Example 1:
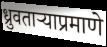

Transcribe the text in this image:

ध्रुवताऱ्याप्रमाणे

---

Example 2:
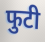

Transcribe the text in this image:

फुटी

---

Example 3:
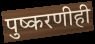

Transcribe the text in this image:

पुष्करणीही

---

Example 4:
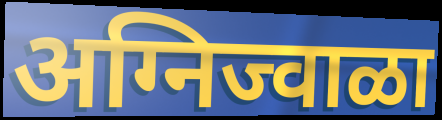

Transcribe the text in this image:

अग्निज्वाळा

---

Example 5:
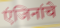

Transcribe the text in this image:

एंजिनांचे